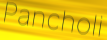
Pancholi